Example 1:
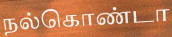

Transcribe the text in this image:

நல்கொண்டா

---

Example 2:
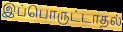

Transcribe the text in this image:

இப்பொருட்டாதல்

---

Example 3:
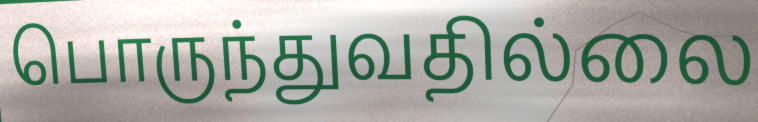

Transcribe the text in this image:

பொருந்துவதில்லை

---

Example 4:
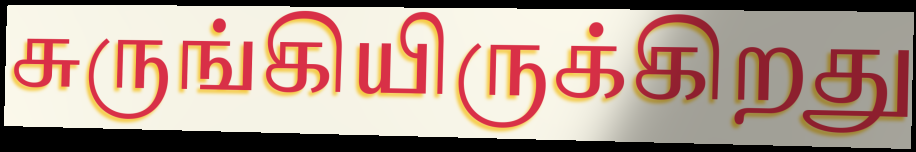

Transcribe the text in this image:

சுருங்கியிருக்கிறது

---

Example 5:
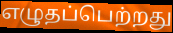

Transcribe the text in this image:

எழுதப்பெற்றது